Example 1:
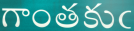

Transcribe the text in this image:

గాంతకుఁ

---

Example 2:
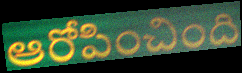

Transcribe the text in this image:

ఆరోపించింది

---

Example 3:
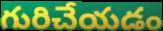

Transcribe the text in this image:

గురిచేయడం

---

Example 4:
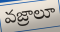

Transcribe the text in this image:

వజ్రాలూ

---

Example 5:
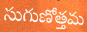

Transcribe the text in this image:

సుగుణోత్తమ